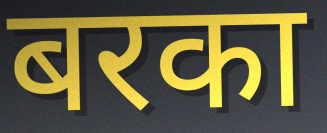
बरका